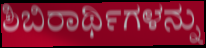
ಶಿಬಿರಾರ್ಥಿಗಳನ್ನು